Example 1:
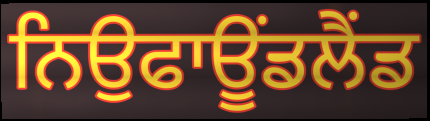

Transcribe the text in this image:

ਨਿਉਫਾਊਂਡਲੈਂਡ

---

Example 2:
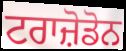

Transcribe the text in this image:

ਟਰਾਜ਼ੋਡੋਨ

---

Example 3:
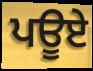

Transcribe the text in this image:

ਪਊਏ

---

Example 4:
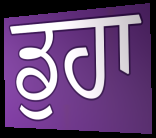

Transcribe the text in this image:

ਡੁਹਾ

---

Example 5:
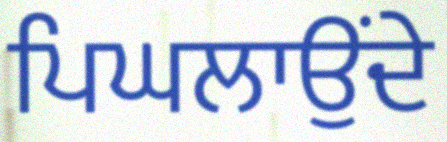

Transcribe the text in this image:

ਪਿਘਲਾਉਂਦੇ